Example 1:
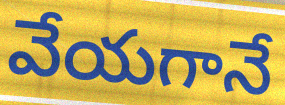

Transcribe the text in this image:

వేయగానే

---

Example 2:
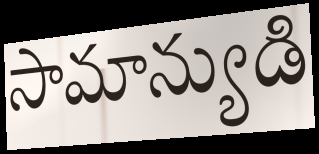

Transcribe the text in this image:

సామాన్యుడి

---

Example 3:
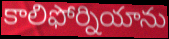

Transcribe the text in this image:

కాలిఫోర్నియాను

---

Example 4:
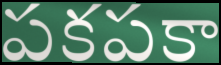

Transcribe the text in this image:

పకపకా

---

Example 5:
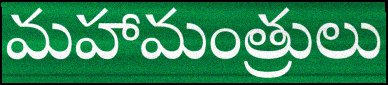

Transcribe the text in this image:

మహామంత్రులు